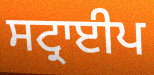
ਸਟ੍ਰਾਈਪ